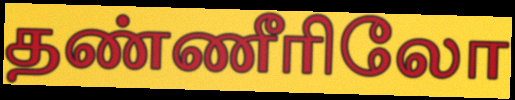
தண்ணீரிலோ